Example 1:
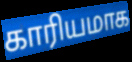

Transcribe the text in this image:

காரியமாக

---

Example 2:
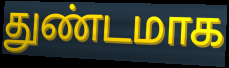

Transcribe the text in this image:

துண்டமாக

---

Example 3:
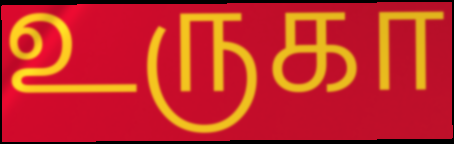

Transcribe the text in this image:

உருகா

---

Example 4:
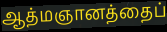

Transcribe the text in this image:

ஆத்மஞானத்தைப்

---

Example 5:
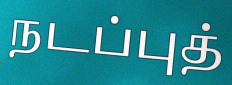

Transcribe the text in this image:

நடப்புத்